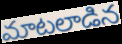
మాటలాడిన